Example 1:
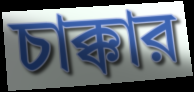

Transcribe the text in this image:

চাক্কার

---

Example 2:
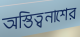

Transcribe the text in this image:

অস্তিত্বনাশের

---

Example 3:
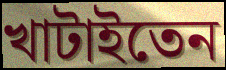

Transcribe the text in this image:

খাটাইতেন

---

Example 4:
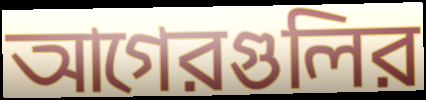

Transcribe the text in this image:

আগেরগুলির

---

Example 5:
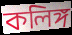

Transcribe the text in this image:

কলিঙ্গ